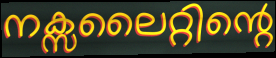
നക്സലൈറ്റിന്റെ